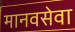
मानवसेवा